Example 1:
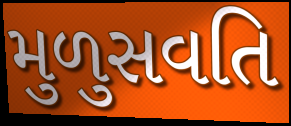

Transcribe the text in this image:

મુળુસવતિ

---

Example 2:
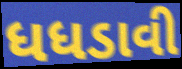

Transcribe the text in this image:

ધધડાવી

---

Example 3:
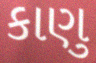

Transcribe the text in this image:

કાણુ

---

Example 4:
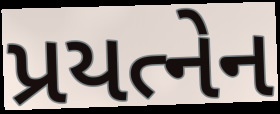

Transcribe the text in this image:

પ્રયત્નેન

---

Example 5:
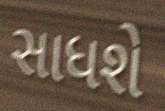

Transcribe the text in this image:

સાધશે